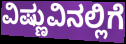
ವಿಷ್ಣುವಿನಲ್ಲಿಗೆ